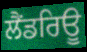
ਲੈਂਡਰਿਊ